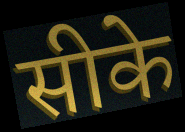
सीके